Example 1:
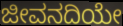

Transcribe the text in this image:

ಜೀವನದಿಯೇ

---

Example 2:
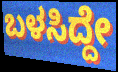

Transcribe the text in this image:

ಬಳಸಿದ್ದೇ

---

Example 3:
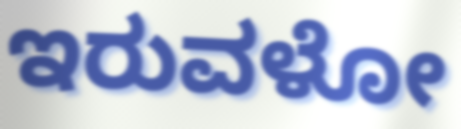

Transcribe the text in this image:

ಇರುವಳೋ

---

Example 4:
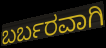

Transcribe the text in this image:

ಬರ್ಬರವಾಗಿ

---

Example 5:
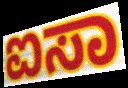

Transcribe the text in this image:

ಐಸಾ